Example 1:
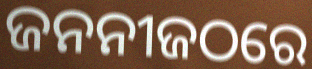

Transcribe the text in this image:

ଜନନୀଜଠରେ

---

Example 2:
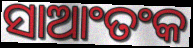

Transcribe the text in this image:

ସାଆଂତଂକ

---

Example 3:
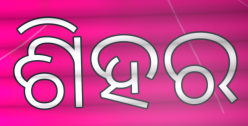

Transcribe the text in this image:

ଶିହର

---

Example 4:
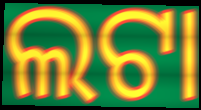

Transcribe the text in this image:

ଲଟା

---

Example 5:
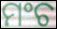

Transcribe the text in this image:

ମଂଚ